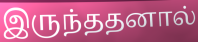
இருந்ததனால்